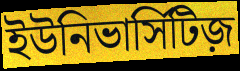
ইউনিভার্সিটিজ়